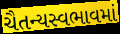
ચૈતન્યસ્વભાવમાં